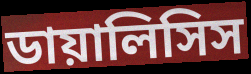
ডায়ালিসিস